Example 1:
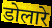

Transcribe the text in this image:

डोलारे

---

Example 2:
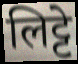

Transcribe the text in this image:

लिट्टे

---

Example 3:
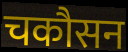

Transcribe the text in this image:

चकौसन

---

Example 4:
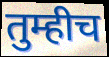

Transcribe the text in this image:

तुम्हीच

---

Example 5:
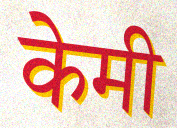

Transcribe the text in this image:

केमी